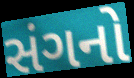
સંગનો